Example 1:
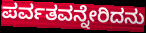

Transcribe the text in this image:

ಪರ್ವತವನ್ನೇರಿದನು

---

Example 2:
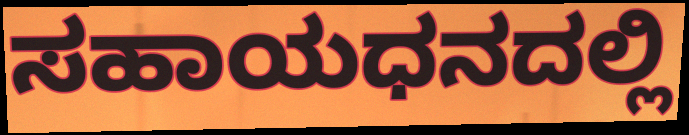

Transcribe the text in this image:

ಸಹಾಯಧನದಲ್ಲಿ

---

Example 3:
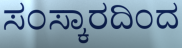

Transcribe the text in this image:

ಸಂಸ್ಕಾರದಿಂದ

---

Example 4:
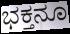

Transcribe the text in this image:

ಭಕ್ತನೂ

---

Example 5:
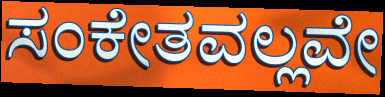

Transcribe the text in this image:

ಸಂಕೇತವಲ್ಲವೇ